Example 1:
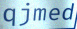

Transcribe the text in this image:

qjmed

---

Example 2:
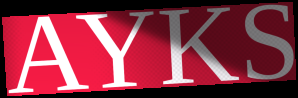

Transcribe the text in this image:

AYKS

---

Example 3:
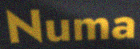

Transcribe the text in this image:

Numa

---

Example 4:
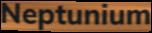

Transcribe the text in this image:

Neptunium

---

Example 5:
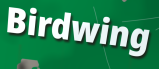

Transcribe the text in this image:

Birdwing